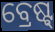
ବ୍ରେଷ୍ଟ୍